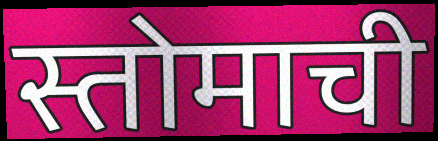
स्तोमाची